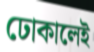
ঢোকালেই